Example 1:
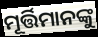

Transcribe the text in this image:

ମୂର୍ତ୍ତିମାନଙ୍କୁ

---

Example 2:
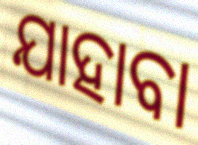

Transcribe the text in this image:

ଯାହାବା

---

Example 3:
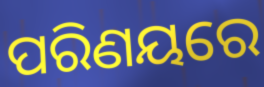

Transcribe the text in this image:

ପରିଣୟରେ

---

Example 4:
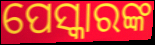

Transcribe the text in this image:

ପେସ୍କାରଙ୍କ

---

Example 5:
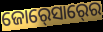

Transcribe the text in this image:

ଜୋର୍‍ସୋର୍‍ରେ